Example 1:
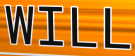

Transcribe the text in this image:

WILL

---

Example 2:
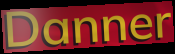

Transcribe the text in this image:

Danner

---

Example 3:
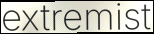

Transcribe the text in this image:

extremist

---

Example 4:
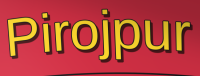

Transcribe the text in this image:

Pirojpur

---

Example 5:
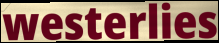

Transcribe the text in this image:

westerlies